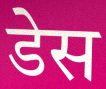
डेस